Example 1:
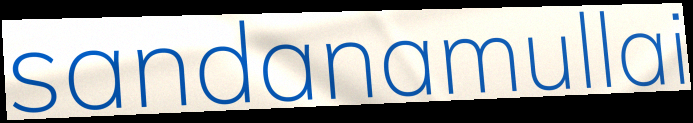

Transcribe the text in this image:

sandanamullai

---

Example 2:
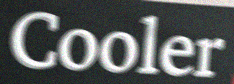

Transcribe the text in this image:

Cooler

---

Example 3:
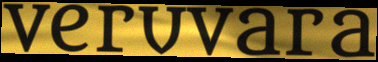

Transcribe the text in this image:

veruvara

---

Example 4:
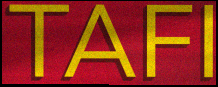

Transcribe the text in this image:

TAFI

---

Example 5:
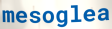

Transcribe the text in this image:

mesoglea